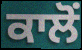
ਕਾਲੋਂ